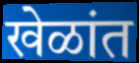
खेळांत